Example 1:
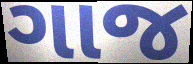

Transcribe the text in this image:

ગાજ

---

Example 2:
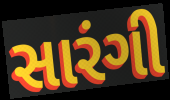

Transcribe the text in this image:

સારંગી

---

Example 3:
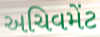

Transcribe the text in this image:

અચિવમેંટ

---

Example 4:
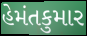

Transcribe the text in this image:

હેમંતકુમાર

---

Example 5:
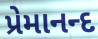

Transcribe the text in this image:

પ્રેમાનન્દ